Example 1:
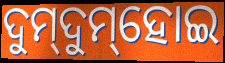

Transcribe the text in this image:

ଦୁମ୍‌ଦୁମ୍‌ହୋଇ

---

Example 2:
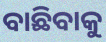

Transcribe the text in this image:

ବାଛିବାକୁ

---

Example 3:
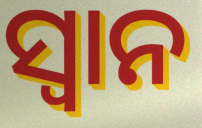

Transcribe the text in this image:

ସ୍ୱାନ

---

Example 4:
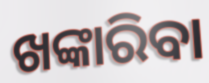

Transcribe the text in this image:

ଖଙ୍କାରିବା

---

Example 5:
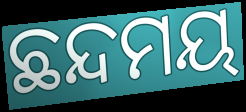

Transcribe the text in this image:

ଛନ୍ଦମୟ